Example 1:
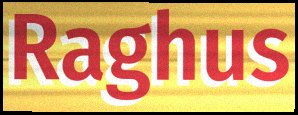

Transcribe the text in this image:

Raghus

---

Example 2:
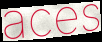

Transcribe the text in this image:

aces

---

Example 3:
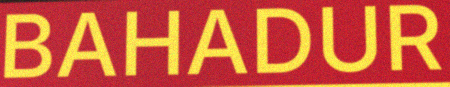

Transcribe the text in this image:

BAHADUR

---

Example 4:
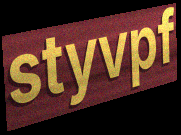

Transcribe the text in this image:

styvpf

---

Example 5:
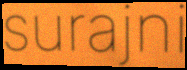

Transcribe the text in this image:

surajni